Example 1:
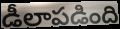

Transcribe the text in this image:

డీలాపడింది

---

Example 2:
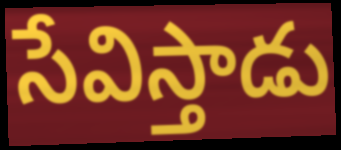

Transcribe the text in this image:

సేవిస్తాడు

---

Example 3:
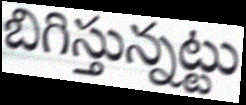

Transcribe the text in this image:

బిగిస్తున్నట్టు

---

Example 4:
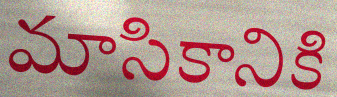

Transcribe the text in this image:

మాసికానికి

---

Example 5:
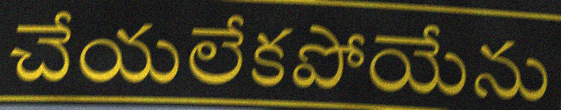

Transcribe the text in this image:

చేయలేకపోయేను